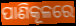
ପାଣିକୂଳରେ